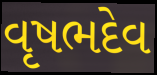
વૃષભદેવ